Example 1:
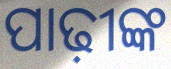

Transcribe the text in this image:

ପାଢ଼ୀଙ୍କ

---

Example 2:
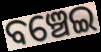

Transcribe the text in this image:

ବଞ୍ଚେଇ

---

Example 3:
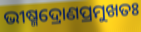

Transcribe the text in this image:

ଭୀଷ୍ମଦ୍ରୋଣପ୍ରମୁଖତଃ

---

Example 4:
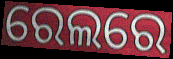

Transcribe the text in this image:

ରେଲରେ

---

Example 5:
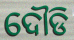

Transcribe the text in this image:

ଦୌଡି